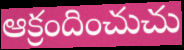
ఆక్రందించుచు